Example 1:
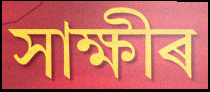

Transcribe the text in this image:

সাক্ষীৰ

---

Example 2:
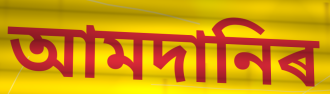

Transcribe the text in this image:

আমদানিৰ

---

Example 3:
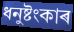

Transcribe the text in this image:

ধনুষ্টংকাৰ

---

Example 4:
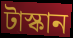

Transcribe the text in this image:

টাস্কান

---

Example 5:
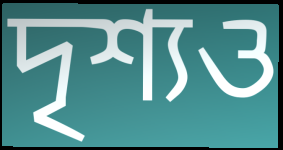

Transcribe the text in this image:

দৃশ্যও